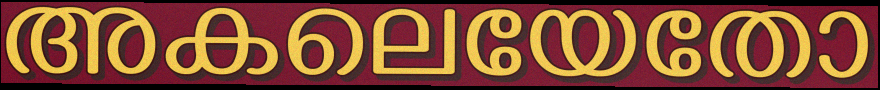
അകലെയേതോ